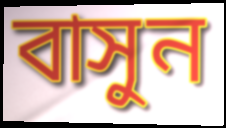
বাসুন